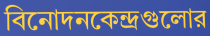
বিনোদনকেন্দ্রগুলোর